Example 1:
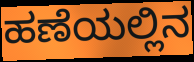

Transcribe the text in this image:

ಹಣೆಯಲ್ಲಿನ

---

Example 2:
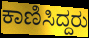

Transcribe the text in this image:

ಕಾಣಿಸಿದ್ದರು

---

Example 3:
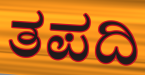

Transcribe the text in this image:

ತಪದಿ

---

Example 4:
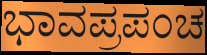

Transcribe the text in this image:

ಭಾವಪ್ರಪಂಚ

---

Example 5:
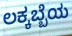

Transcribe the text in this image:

ಲಕ್ಕಬ್ಬೆಯ